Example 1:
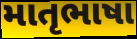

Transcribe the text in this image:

માતૃભાષા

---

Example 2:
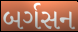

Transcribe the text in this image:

બર્ગસન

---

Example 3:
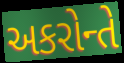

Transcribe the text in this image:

અકરોન્તે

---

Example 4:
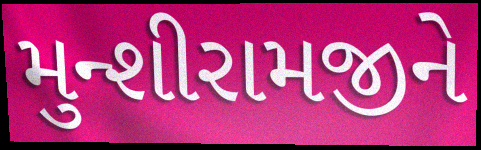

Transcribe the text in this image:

મુન્શીરામજીને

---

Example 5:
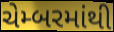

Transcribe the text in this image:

ચેમ્બરમાંથી